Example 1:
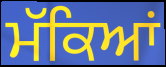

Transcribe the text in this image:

ਮੱਕਿਆਂ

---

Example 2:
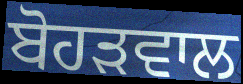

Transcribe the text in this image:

ਬੋਹੜਵਾਲ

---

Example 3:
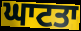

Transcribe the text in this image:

ਘਾਟਤਾ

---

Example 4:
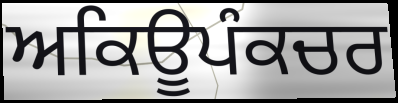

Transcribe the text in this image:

ਅਕਿਊਪੰਕਚਰ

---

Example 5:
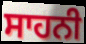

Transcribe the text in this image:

ਸਾਹਨੀ